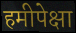
हमीपेक्षा